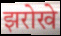
झरोखे